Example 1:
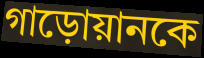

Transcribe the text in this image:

গাড়োয়ানকে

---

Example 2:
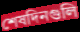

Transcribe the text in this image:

শেষদিনগুলি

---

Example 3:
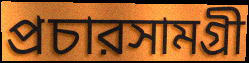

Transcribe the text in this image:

প্রচারসামগ্রী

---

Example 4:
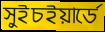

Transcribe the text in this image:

সুইচইয়ার্ডে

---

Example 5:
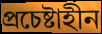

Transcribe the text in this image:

প্রচেষ্টাহীন